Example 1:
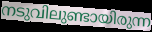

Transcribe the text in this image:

നടുവിലുണ്ടായിരുന്ന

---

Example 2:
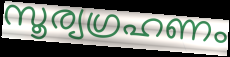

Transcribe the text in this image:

സൂര്യഗ്രഹണം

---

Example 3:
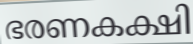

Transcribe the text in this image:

ഭരണകക്ഷി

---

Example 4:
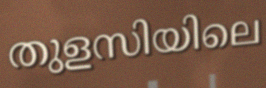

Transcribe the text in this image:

തുളസിയിലെ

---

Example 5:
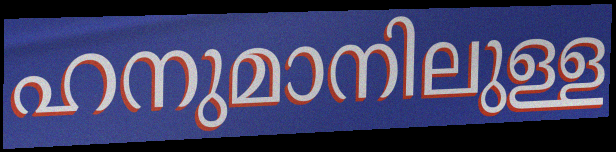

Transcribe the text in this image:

ഹനുമാനിലുള്ള